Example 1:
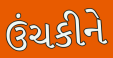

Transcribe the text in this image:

ઉંચકીને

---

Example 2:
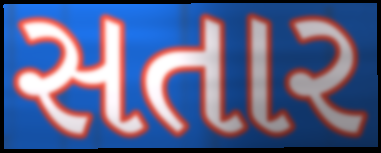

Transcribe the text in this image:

સતાર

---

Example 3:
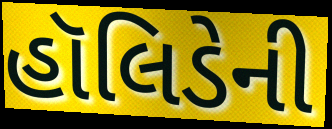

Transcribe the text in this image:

હૉલિડેની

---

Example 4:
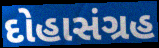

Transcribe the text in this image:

દોહાસંગ્રહ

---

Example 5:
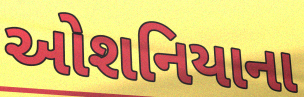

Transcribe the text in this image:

ઓશનિયાના